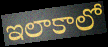
ఇలాకాలో